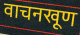
वाचनखूण